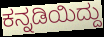
ಕನ್ನಡಿಯಿದ್ದು